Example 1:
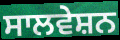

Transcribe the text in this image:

ਸਾਲਵੇਸ਼ਨ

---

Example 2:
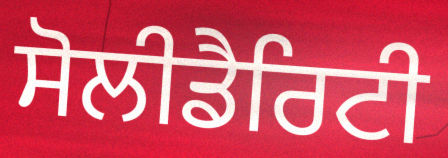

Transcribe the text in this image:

ਸੋਲੀਡੈਰਿਟੀ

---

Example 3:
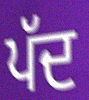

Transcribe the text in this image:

ਪੱਦ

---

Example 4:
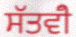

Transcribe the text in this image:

ਸੱਤਵੀਁ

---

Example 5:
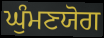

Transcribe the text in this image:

ਘੁੰਮਣਯੋਗ